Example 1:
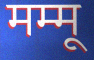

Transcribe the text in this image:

मम्मू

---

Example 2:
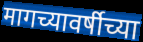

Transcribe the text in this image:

मागच्यावर्षीच्या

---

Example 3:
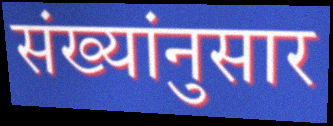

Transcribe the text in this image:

संख्यांनुसार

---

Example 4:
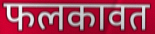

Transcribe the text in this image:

फलकावत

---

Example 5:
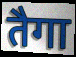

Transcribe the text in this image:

तैगा